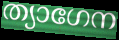
ത്യാഗേന